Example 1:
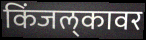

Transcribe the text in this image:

किंजल्कावर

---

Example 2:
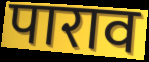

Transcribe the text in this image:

पाराव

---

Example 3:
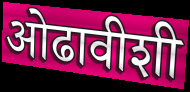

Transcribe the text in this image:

ओढावीशी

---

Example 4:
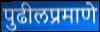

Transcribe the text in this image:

पुढीलप्रमाणे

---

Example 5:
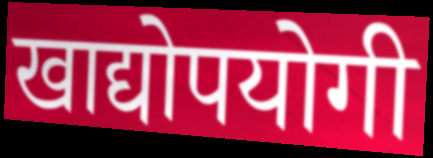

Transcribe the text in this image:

खाद्योपयोगी